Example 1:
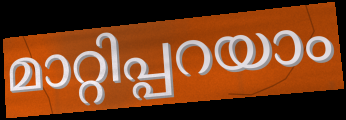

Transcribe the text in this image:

മാറ്റിപ്പറയാം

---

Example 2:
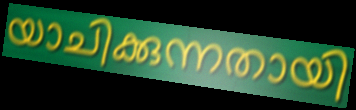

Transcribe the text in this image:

യാചിക്കുന്നതായി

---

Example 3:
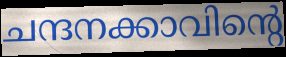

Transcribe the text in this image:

ചന്ദനക്കാവിന്റെ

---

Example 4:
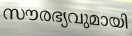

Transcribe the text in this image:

സൗരഭ്യവുമായി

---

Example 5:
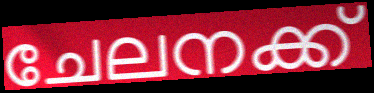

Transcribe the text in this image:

ചേലനക്ക്